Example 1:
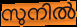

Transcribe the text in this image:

സുനിൽ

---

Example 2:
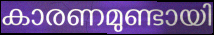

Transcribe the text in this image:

കാരണമുണ്ടായി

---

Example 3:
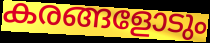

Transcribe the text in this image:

കരങ്ങളോടും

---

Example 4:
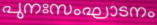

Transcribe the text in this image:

പുനഃസംഘാടനം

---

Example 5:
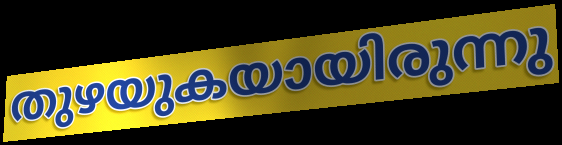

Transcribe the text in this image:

തുഴയുകയായിരുന്നു